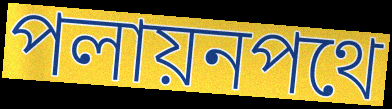
পলায়নপথে